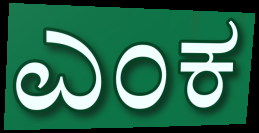
ಎಂಕ